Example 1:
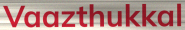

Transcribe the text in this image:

Vaazthukkal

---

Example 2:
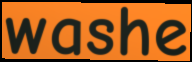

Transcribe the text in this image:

washe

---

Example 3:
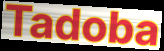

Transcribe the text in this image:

Tadoba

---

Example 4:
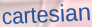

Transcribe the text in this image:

cartesian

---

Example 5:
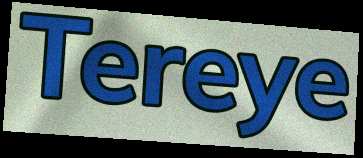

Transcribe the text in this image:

Tereye